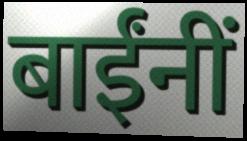
बाईंनीं